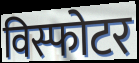
विस्फोटर